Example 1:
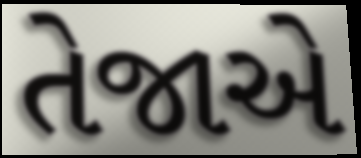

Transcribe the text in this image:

તેજાએ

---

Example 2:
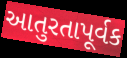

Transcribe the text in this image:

આતુરતાપૂર્વક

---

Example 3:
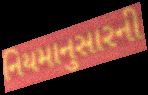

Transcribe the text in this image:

નિયમાનુસારની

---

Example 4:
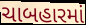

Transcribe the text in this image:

ચાબહારમાં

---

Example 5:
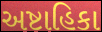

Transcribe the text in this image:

અષ્ટાહિકા